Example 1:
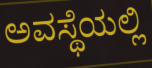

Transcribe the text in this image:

ಅವಸ್ಥೆಯಲ್ಲಿ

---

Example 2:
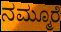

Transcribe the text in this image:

ನಮ್ಮೂರೆ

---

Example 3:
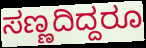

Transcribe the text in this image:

ಸಣ್ಣದಿದ್ದರೂ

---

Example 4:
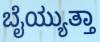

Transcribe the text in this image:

ಬೈಯ್ಯುತ್ತಾ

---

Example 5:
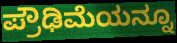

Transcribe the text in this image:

ಪ್ರೌಢಿಮೆಯನ್ನೂ